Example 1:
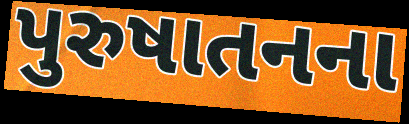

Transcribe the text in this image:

પુરુષાતનના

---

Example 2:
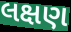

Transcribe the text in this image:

લક્ષણ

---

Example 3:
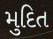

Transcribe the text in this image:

મુદિત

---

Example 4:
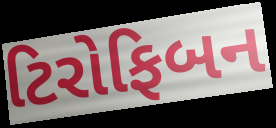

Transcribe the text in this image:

ટિરોફિબન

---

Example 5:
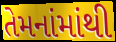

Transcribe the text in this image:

તેમનાંમાંથી